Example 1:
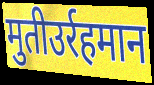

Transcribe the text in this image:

मुतीउर्रहमान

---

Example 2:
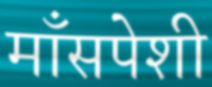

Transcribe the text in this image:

माँसपेशी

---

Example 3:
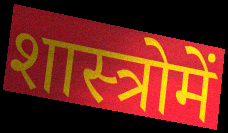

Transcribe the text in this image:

शास्त्रोमें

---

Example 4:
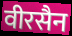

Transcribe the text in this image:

वीरसैन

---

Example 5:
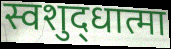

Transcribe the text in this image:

स्वशुद्धात्मा